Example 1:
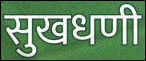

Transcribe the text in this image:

सुखधणी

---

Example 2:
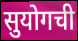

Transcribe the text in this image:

सुयोगची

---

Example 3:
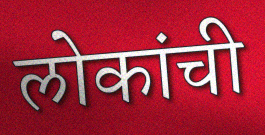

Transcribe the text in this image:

लोकांची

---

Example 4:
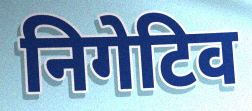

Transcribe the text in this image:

निगेटिव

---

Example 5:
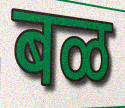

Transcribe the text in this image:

बळ